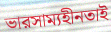
ভারসাম্যহীনতাই